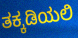
ತಕ್ಕಡಿಯಲಿ